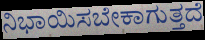
ನಿಭಾಯಿಸಬೇಕಾಗುತ್ತದೆ